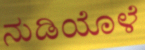
ನುಡಿಯೊಳೆ